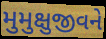
મુમુક્ષુજીવને